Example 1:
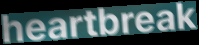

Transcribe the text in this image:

heartbreak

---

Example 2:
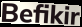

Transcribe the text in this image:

Befikir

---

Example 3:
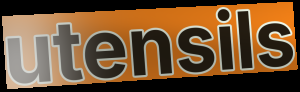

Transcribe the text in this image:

utensils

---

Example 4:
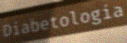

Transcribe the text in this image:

Diabetologia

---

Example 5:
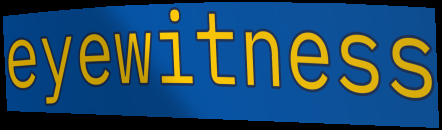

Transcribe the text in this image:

eyewitness